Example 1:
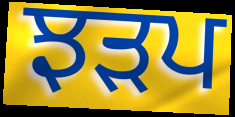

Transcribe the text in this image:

ਝੜਪ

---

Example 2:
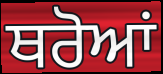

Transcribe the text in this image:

ਥਰੋਆਂ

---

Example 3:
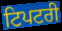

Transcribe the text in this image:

ਟਿਪਟਰੀ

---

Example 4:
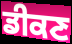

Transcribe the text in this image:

ਡੀਕਣ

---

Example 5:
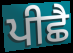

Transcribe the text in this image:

ਪੀਛੈ